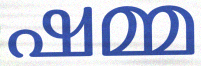
ഷമ്മ